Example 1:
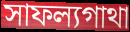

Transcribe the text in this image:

সাফল্যগাথা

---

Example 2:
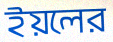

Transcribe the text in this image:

ইয়লের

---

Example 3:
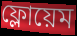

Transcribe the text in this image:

ফ্লোয়েম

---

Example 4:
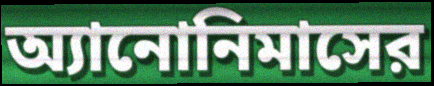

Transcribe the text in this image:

অ্যানোনিমাসের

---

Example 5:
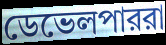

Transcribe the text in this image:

ডেভেলপাররা